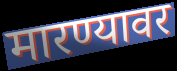
मारण्यावर